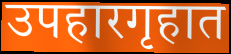
उपहारगृहात